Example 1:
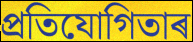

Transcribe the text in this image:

প্ৰতিযোগিতাৰ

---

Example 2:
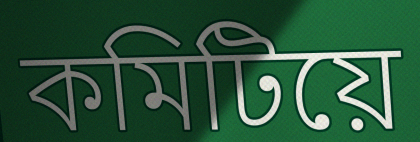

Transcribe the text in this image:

কমিটিয়ে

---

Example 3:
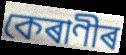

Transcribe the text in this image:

কেৰাণীৰ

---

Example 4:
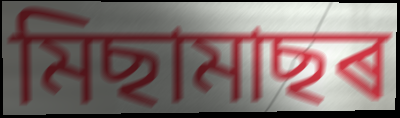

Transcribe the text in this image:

মিছামাছৰ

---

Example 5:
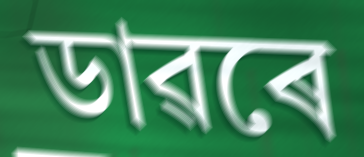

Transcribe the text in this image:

ডাৱৰে